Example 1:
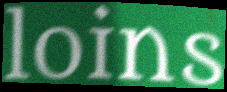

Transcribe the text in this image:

loins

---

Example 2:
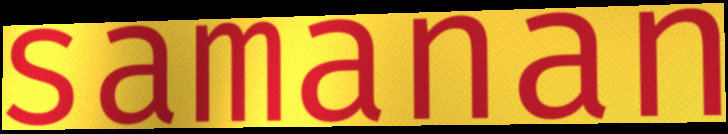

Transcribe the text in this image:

samanan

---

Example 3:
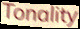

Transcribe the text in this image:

Tonality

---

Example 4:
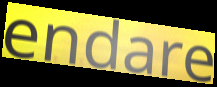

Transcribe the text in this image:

endare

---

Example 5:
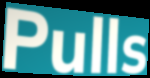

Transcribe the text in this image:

Pulls